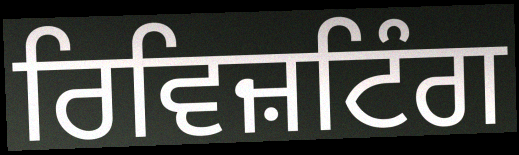
ਰਿਵਿਜ਼ਟਿੰਗ